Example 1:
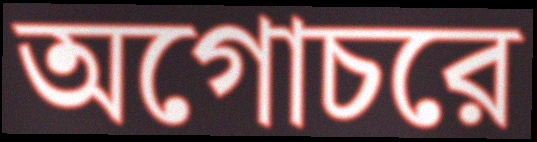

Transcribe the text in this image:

অগোচরে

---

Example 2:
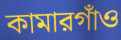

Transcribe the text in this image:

কামারগাঁও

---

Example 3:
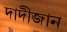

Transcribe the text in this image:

দাদীজান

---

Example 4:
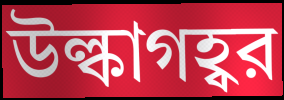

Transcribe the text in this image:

উল্কাগহ্বর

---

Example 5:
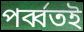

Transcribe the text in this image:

পর্ব্বতই